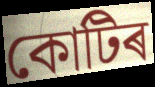
কোটিৰ